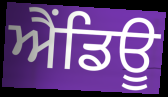
ਐਂਡਿਊ